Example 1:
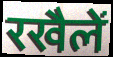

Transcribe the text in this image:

रखैलें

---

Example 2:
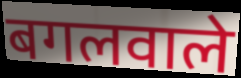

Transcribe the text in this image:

बगलवाले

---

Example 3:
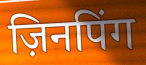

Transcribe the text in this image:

ज़िनपिंग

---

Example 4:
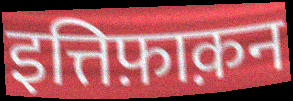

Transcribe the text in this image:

इत्तिफ़ाक़न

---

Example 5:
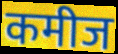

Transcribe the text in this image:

कमीज